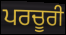
ਪਰਚੂਰੀ